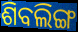
ଶିବଲିଙ୍ଗ